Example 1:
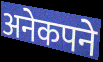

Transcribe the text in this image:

अनेकपने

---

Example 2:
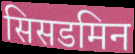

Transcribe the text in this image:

सिसडमिन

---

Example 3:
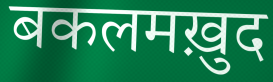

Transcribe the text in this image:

बकलमख़ुद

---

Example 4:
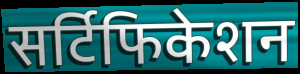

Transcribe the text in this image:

सर्टिफिकेशन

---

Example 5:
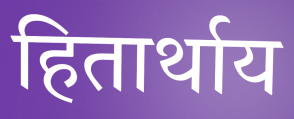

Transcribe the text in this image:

हितार्थाय